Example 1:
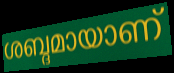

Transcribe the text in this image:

ശബ്ദമായാണ്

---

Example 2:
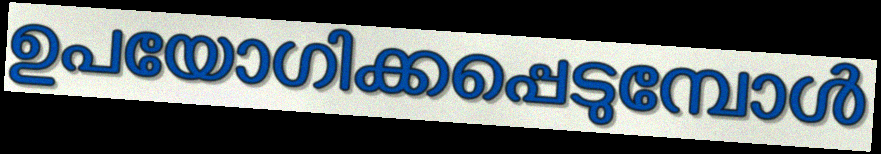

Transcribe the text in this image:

ഉപയോഗിക്കപ്പെടുമ്പോൾ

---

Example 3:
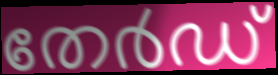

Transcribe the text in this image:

തേർഡ്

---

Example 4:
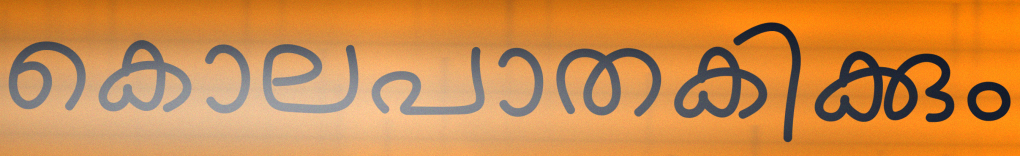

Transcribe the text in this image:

കൊലപാതകിക്കും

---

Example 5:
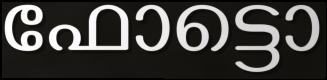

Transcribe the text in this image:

ഫോട്ടൊ